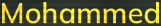
Mohammed